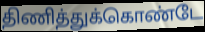
திணித்துக்கொண்டே